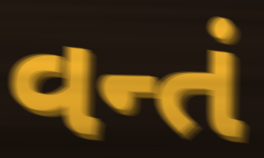
વન્તં